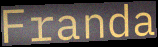
Franda